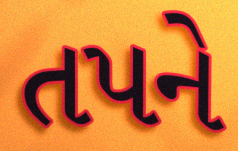
તપને